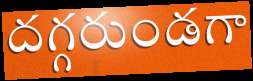
దగ్గరుండగా